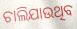
ଚାଲିଯାଉଥିବ